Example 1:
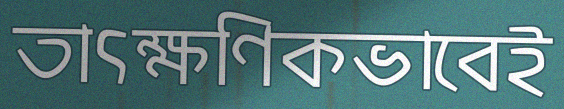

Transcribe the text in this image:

তাৎক্ষণিকভাবেই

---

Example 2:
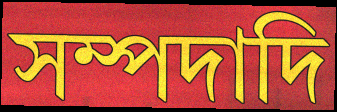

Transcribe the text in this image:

সম্পদাদি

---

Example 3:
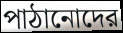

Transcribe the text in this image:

পাঠানোদের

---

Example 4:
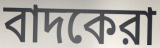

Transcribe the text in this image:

বাদকেরা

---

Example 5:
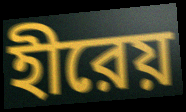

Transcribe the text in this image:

হীরেয়